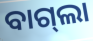
ବାଗ୍‌ଲା